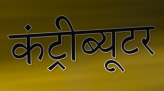
कंट्रीब्यूटर